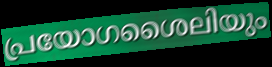
പ്രയോഗശൈലിയും